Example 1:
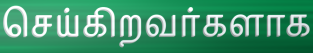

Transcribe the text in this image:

செய்கிறவர்களாக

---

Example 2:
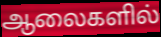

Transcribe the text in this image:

ஆலைகளில்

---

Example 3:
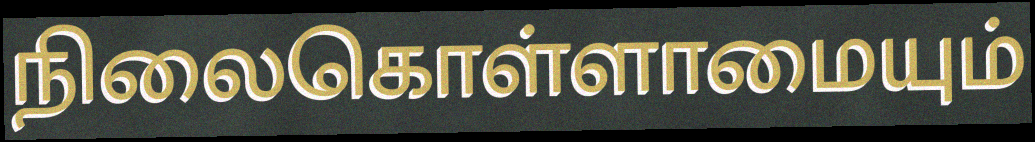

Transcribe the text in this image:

நிலைகொள்ளாமையும்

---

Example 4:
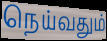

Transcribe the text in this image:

நெய்வதும்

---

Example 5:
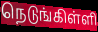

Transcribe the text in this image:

நெடுங்கிள்ளி